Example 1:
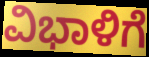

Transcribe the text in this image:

ವಿಭಾಳಿಗೆ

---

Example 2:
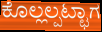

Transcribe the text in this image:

ಕೊಲ್ಲಲ್ಪಟ್ಟಾಗ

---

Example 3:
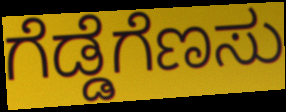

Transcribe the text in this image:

ಗೆಡ್ಡೆಗೆಣಸು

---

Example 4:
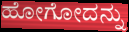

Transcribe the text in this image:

ಹೋಗೋದನ್ನು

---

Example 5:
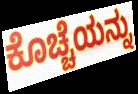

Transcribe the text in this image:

ಕೊಚ್ಚೆಯನ್ನು